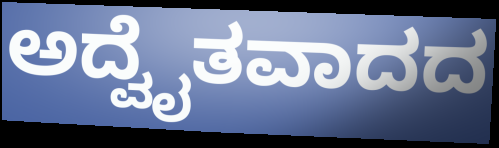
ಅದ್ವೈತವಾದದ